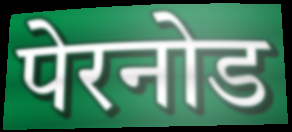
पेरनोड